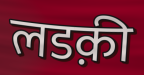
लडक़ी